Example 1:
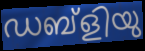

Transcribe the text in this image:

ഡബ്ളിയു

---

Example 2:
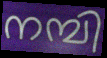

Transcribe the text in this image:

നമ്പി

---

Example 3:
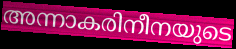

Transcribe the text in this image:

അന്നാകരിനീനയുടെ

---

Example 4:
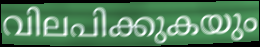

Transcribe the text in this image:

വിലപിക്കുകയും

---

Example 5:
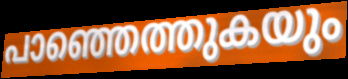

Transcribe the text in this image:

പാഞ്ഞെത്തുകയും